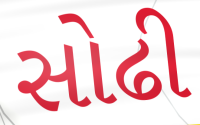
સોઢી